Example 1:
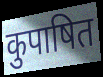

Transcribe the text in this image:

कुपाषित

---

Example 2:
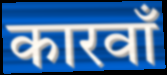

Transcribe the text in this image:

कारवाँ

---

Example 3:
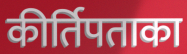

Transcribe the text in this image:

कीर्तिपताका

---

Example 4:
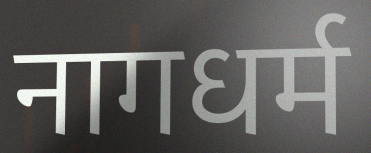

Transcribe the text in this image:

नागधर्म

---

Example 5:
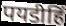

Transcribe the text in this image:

पयडीहिं